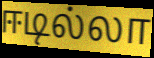
ஈடில்லா